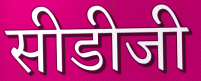
सीडीजी